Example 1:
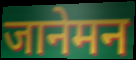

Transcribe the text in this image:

जानेमन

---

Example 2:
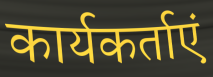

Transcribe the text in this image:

कार्यकर्ताएं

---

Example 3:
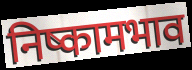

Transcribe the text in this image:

निष्कामभाव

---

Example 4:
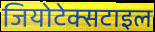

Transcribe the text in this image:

जियोटेक्सटाइल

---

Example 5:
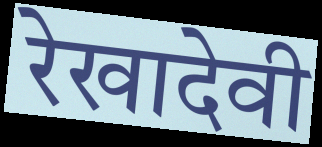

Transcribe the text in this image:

रेखादेवी